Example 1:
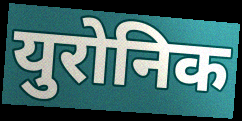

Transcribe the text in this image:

युरोनिक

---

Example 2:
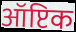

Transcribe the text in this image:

ऑप्टिक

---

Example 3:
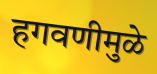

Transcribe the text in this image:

हगवणीमुळे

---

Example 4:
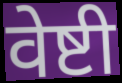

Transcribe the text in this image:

वेष्टी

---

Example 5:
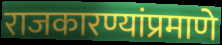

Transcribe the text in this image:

राजकारण्यांप्रमाणे